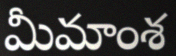
మీమాంశ